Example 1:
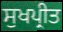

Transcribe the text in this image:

ਸੁਖਪ੍ਰੀਤ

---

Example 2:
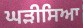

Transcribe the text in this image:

ਘੜੀਸਿਆ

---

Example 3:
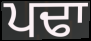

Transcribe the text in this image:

ਪਢਾ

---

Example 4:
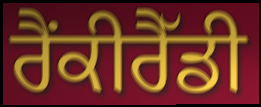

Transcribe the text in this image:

ਰੈਂਕੀਰੈੱਡੀ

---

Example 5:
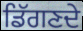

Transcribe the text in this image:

ਡਿੱਗਣਦੇ